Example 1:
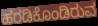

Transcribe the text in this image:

ಹರಡಿಕೊಂಡಿರುವ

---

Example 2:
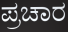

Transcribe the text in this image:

ಪ್ರಚಾರ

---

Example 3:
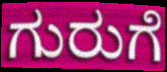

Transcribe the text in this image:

ಗುರುಗೆ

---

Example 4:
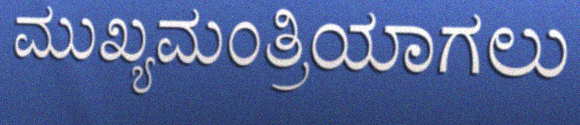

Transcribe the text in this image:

ಮುಖ್ಯಮಂತ್ರಿಯಾಗಲು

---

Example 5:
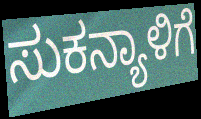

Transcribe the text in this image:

ಸುಕನ್ಯಾಳಿಗೆ